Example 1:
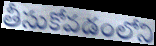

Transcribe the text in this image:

తీసుకోవడంలోని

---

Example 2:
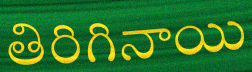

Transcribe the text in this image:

తిరిగినాయి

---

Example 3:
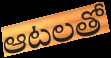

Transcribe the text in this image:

ఆటలతో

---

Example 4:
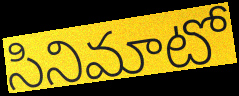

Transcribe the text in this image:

సినిమాటో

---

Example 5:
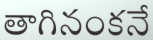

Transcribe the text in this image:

తాగినంకనే